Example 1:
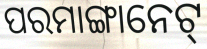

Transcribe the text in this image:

ପରମାଙ୍ଗାନେଟ୍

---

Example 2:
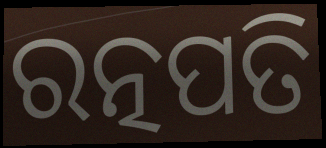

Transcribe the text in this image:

ରତ୍ନପତି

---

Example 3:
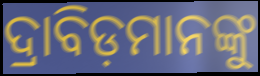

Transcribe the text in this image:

ଦ୍ରାବିଡ଼ମାନଙ୍କୁ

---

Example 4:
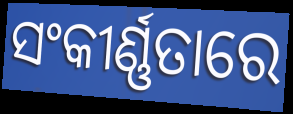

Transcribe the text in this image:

ସଂକୀର୍ଣ୍ଣତାରେ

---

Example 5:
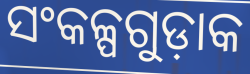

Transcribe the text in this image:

ସଂକଳ୍ପଗୁଡ଼ାକ